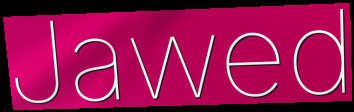
Jawed